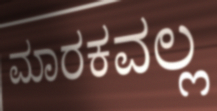
ಮಾರಕವಲ್ಲ